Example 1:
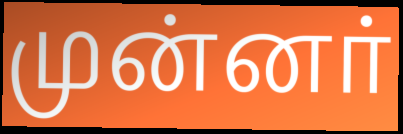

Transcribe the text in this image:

முன்னர்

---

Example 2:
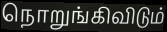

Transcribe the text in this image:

நொறுங்கிவிடும்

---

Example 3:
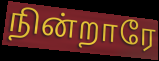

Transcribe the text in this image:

நின்றாரே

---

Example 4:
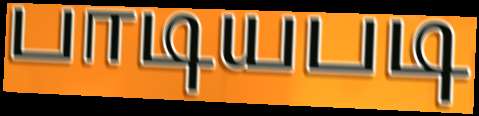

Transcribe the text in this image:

பாடியபடி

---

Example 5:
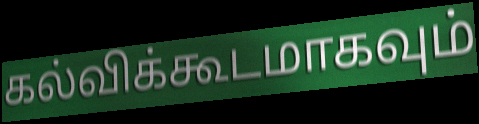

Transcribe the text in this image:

கல்விக்கூடமாகவும்